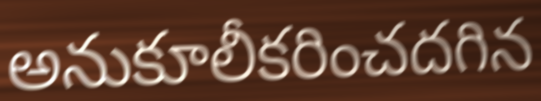
అనుకూలీకరించదగిన